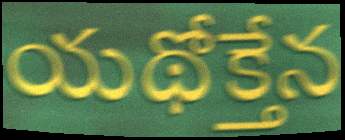
యథోక్తేన